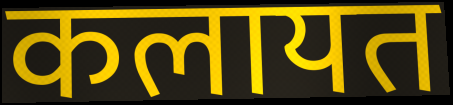
कलायत